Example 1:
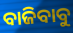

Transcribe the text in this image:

ବାଜିବାବୁ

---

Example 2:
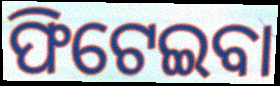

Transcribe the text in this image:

ଫିଟେଇବା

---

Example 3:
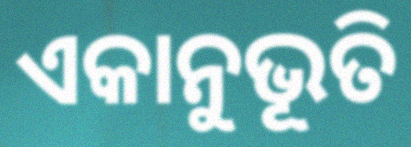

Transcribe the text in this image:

ଏକାନୁଭୂତି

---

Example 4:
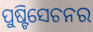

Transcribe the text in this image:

ପୁଷ୍ଟିସେଚନର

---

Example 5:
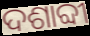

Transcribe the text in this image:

ଦଶାବ୍ଦୀ